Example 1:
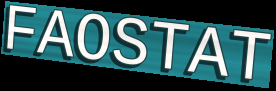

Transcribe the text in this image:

FAOSTAT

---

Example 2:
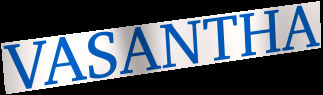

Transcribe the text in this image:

VASANTHA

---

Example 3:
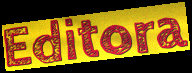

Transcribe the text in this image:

Editora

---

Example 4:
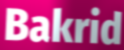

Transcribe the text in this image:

Bakrid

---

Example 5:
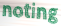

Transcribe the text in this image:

noting